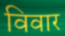
विवार